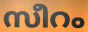
സീറം